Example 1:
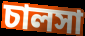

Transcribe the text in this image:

চালসা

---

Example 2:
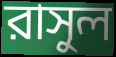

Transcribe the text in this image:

রাসুল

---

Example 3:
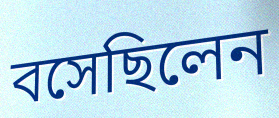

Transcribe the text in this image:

বসেছিলেন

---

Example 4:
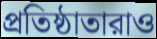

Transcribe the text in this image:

প্রতিষ্ঠাতারাও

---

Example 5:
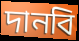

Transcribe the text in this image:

দানবি